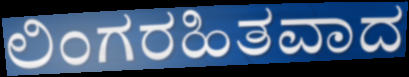
ಲಿಂಗರಹಿತವಾದ